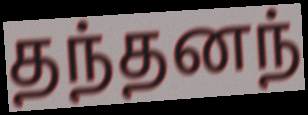
தந்தனந்